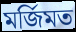
মর্জিমত